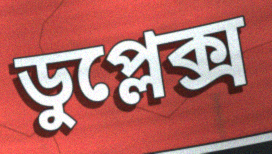
ডুপ্লেক্স